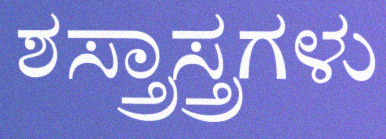
ಶಸ್ತ್ರಾಸ್ತ್ರಗಳು